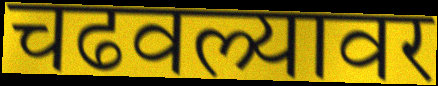
चढवल्यावर